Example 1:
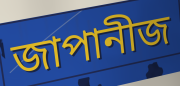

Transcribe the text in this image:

জাপানীজ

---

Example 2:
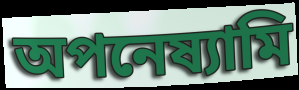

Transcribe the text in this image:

অপনেষ্যামি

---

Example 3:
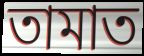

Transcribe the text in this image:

তামাত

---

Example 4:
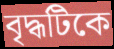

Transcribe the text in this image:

বৃদ্ধটিকে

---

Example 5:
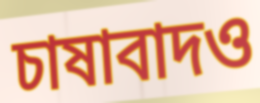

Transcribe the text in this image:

চাষাবাদও